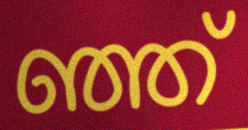
ഞ്ഞ്